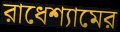
রাধেশ্যামের